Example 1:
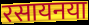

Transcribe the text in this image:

रसायनया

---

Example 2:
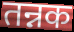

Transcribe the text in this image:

तन्नक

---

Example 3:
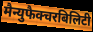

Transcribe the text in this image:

मैन्युफैक्चरबिलिटी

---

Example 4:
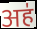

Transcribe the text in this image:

अह॑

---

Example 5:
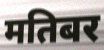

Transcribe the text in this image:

मतिबर